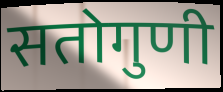
सतोगुणी